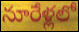
నూరేళ్లలో